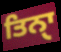
ਤਿਨੑਾ